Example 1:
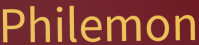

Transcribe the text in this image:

Philemon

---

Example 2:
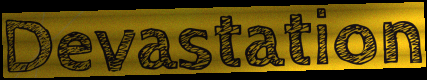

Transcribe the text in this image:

Devastation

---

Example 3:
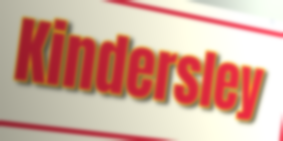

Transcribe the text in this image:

Kindersley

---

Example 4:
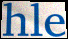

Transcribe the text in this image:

hle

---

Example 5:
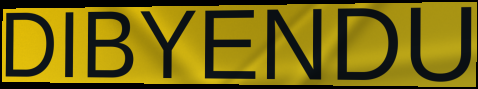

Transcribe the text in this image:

DIBYENDU